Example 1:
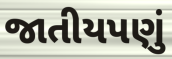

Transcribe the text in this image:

જાતીયપણું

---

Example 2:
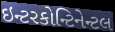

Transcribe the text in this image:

ઇન્ટરકોન્ટિનેન્ટલ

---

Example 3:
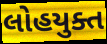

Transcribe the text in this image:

લોહયુક્ત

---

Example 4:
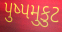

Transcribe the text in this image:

પુષ્પમુકુટ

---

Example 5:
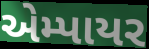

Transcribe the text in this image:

એમ્પાયર